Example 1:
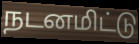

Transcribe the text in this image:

நடனமிட்டு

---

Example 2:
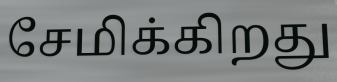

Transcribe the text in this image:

சேமிக்கிறது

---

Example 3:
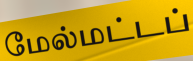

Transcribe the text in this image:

மேல்மட்டப்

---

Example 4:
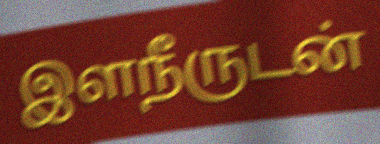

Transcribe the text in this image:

இளநீருடன்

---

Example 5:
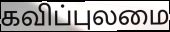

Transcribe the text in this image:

கவிப்புலமை